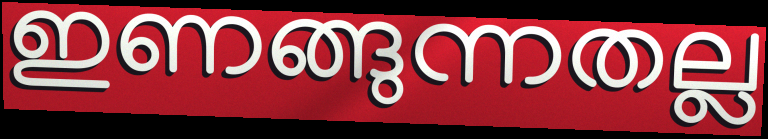
ഇണങ്ങുന്നതല്ല